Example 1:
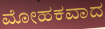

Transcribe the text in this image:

ಮೋಹಕವಾದ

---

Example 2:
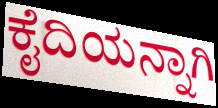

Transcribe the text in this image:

ಕೈದಿಯನ್ನಾಗಿ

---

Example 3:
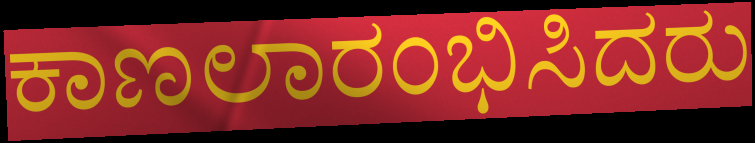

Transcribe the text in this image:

ಕಾಣಲಾರಂಭಿಸಿದರು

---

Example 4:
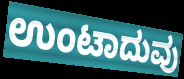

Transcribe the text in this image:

ಉಂಟಾದುವು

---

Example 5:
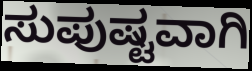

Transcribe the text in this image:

ಸುಪುಷ್ಟವಾಗಿ